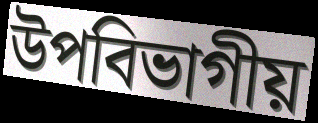
উপবিভাগীয়